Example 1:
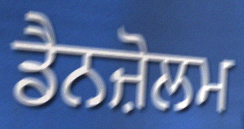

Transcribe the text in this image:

ਡੈਨਜ਼ੋਲਮ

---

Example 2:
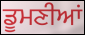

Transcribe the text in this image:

ਡੂਮਣੀਆਂ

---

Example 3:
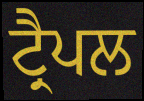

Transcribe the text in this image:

ਟ੍ਰੈਪਲ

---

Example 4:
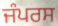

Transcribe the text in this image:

ਜੰਪਰਸ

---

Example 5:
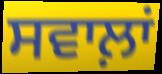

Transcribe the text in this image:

ਸਵਾਲ਼ਾਂ